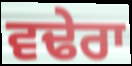
ਵਢੇਰਾ